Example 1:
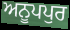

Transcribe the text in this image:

ਅਨੂਪਪੁਰ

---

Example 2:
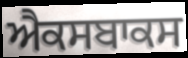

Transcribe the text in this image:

ਐਕਸਬਾਕਸ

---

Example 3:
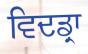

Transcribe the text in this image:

ਵਿਦਡ੍ਰਾ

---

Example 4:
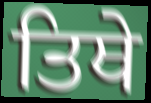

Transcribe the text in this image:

ਤਿਥੇ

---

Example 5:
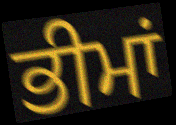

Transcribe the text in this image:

ਭੀਮਾਂ